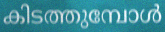
കിടത്തുമ്പോൾ